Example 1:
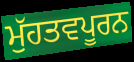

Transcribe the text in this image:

ਮੁੱਹਤਵਪੂਰਨ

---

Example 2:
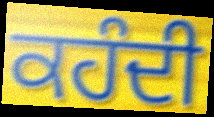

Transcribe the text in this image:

ਕਹੰਦੀ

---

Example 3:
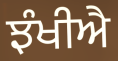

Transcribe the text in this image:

ਝੰਖੀਐ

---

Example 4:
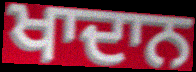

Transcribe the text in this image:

ਖਾਦਾਨ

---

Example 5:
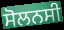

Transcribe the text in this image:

ਸੋਲਨਸੀ